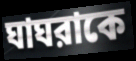
ঘাঘরাকে